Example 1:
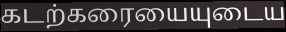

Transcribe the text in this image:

கடற்கரையையுடைய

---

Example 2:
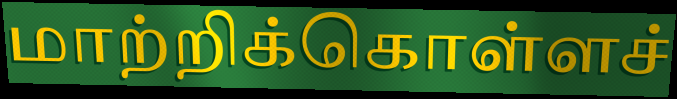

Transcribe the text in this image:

மாற்றிக்கொள்ளச்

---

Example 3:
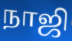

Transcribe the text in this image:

நாஜி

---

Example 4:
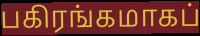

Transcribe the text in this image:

பகிரங்கமாகப்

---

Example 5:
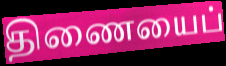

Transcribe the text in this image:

திணையைப்